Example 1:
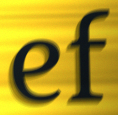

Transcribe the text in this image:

ef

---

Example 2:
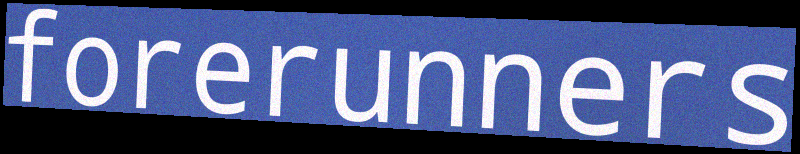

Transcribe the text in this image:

forerunners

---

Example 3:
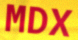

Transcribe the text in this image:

MDX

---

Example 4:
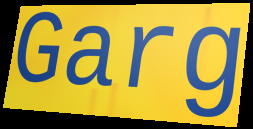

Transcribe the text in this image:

Garg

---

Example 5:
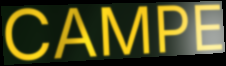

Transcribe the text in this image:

CAMPE